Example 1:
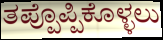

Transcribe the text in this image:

ತಪ್ಪೊಪ್ಪಿಕೊಳ್ಳಲು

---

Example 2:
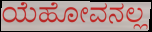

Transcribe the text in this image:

ಯೆಹೋವನಲ್ಲ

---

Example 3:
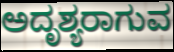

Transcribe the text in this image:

ಅದೃಶ್ಯರಾಗುವ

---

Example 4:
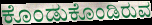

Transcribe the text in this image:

ಕೊಂಡುಕೊಂಡಿರುವ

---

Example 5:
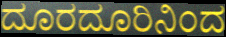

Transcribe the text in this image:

ದೂರದೂರಿನಿಂದ